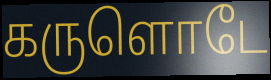
கருளொடே